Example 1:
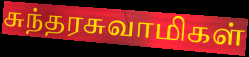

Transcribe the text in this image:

சுந்தரசுவாமிகள்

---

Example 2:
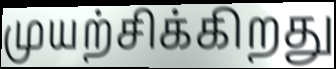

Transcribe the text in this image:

முயற்சிக்கிறது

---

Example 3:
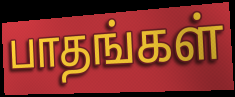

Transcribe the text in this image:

பாதங்கள்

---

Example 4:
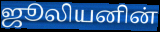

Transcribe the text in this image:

ஜூலியனின்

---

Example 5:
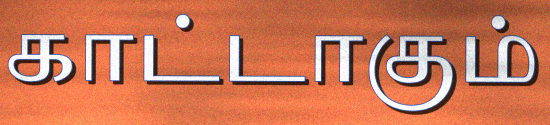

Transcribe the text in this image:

காட்டாகும்